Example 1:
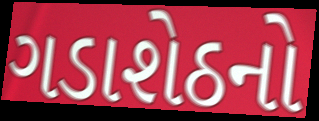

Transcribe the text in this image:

ગડાશેઠનો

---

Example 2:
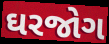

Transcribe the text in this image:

ઘરજોગ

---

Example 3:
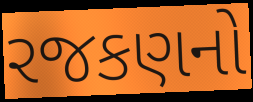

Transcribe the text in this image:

રજકણનો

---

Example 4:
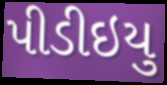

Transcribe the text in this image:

પીડીઇયુ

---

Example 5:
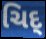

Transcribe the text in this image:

ચિદ્